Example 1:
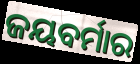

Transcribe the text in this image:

ଜୟବର୍ମାର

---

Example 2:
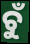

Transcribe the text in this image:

ଚୁଁ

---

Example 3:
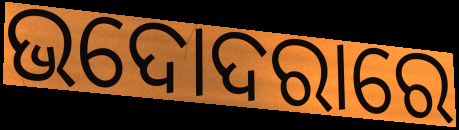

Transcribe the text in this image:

ଭଦୋଦରାରେ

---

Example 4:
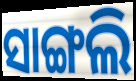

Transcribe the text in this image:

ସାଙ୍ଗଲି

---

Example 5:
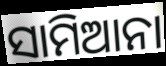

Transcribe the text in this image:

ସାମିଆନା